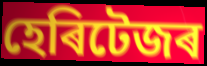
হেৰিটেজৰ